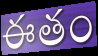
ఈతం